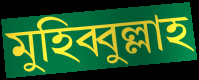
মুহিব্বুল্লাহ